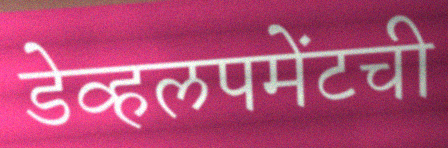
डेव्हलपमेंटची